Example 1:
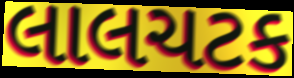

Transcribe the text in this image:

લાલચટક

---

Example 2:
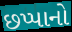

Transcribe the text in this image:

છપ્પાનો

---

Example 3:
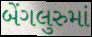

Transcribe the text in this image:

બેંગલુરુમાં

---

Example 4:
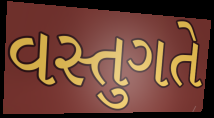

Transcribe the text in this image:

વસ્તુગતે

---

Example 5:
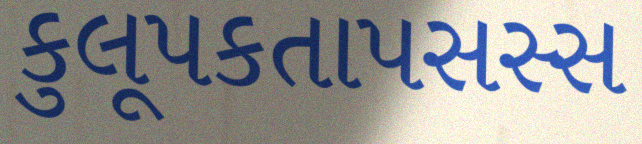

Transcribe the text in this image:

કુલૂપકતાપસસ્સ